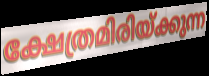
ക്ഷേത്രമിരിയ്ക്കുന്ന